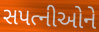
સપત્નીઓને